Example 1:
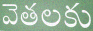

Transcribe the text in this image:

వెతలకు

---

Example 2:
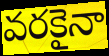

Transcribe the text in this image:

వరకైనా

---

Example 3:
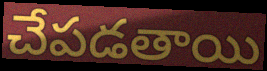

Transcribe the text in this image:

చేపడతాయి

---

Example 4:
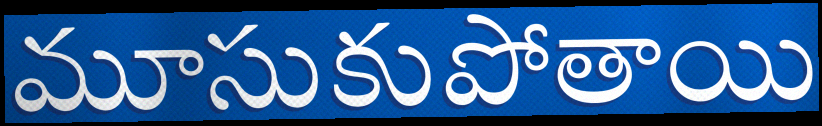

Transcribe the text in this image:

మూసుకుపోతాయి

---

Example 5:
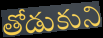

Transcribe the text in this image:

తోడుకుని